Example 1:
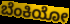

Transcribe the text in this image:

ಬೆಂಕಿಯೋ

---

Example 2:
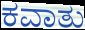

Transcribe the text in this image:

ಕವಾತು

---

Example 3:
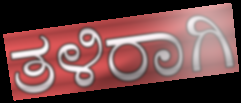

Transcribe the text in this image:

ತಳಿರಾಗಿ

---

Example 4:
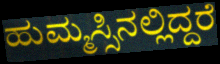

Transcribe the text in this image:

ಹುಮ್ಮಸ್ಸಿನಲ್ಲಿದ್ದರೆ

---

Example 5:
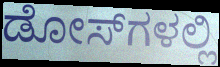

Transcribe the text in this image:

ಡೋಸ್‌ಗಳಲ್ಲಿ